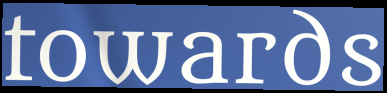
towards